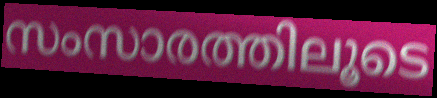
സംസാരത്തിലൂടെ